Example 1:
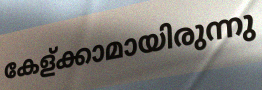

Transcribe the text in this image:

കേള്ക്കാമായിരുന്നു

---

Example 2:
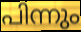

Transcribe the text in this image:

പിന്നും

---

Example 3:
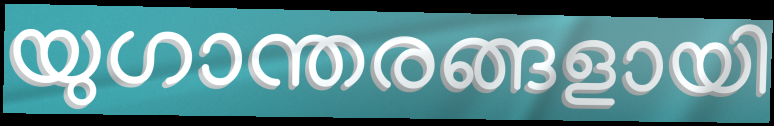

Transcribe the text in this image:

യുഗാന്തരങ്ങളായി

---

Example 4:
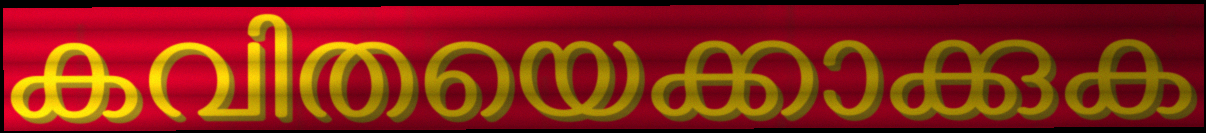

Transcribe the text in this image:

കവിതയെക്കാക്കുക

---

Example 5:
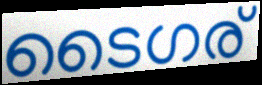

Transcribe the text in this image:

ടൈഗര്